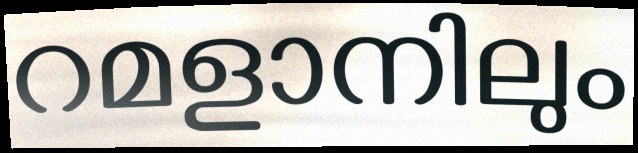
റമളാനിലും